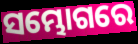
ସମ୍ଭୋଗରେ